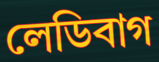
লেডিবাগ